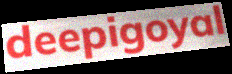
deepigoyal